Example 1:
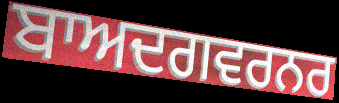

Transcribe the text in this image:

ਬਾਅਦਗਵਰਨਰ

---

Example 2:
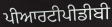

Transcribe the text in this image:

ਪੀਆਰਟੀਪੀਡੀਬੀ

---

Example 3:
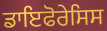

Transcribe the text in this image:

ਡਾਇਫੋਰੇਸਿਸ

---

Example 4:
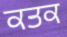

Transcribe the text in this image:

ਕਤਕ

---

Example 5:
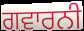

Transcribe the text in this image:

ਗਵਾਰਨੀ